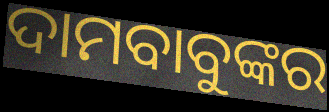
ଦାମବାବୁଙ୍କର